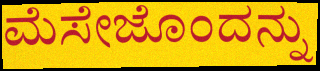
ಮೆಸೇಜೊಂದನ್ನು